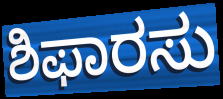
ಶಿಫಾರಸು